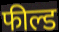
फील्ड